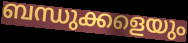
ബന്ധുക്കളെയും